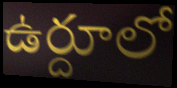
ఉర్దూలో